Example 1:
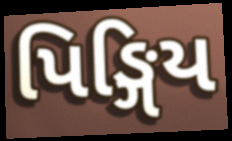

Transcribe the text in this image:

પિઙ્ગિય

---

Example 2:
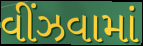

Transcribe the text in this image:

વીંઝવામાં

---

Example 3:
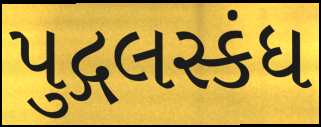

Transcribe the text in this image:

પુદ્ગલસ્કંધ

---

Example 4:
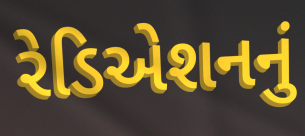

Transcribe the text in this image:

રેડિએશનનું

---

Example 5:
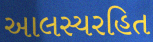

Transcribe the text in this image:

આલસ્યરહિત